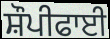
ਸ਼ੌਪੀਫਾਈ